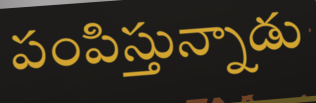
పంపిస్తున్నాడు